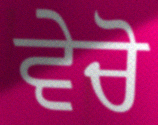
ਵੇਚੋ